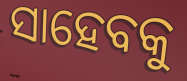
ସାହେବକୁ